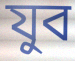
যুব